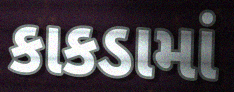
કાકડામાં